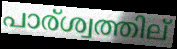
പാര്ശ്വത്തില്